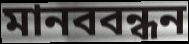
মানববন্ধন